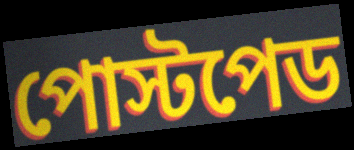
পোস্টপেড